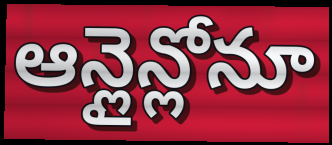
ఆన్లైన్లోనూ